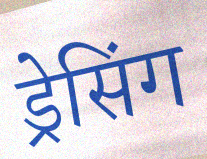
ड्रेसिंग